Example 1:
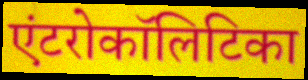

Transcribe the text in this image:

एंटरोकॉलिटिका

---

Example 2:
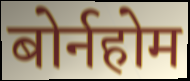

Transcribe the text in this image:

बोर्नहोम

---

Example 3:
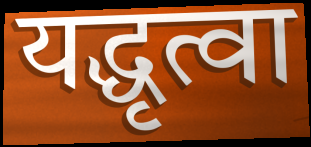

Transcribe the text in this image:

यद्धृत्वा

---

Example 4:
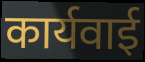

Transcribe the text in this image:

कार्यवाई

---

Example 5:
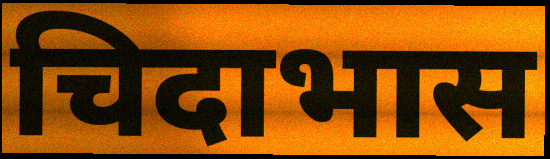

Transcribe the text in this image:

चिदाभास